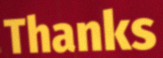
Thanks